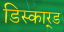
डिस्कार्ड